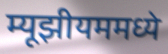
म्यूझीयममध्ये